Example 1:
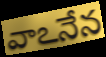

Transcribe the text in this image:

వాఽనేన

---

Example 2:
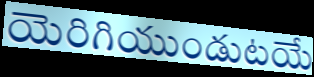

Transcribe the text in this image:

యెరిగియుండుటయే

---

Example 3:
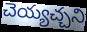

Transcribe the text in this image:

చెయ్యచ్చని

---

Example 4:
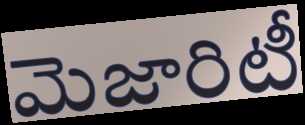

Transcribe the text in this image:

మెజారిటీ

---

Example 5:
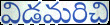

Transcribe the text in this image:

విడమరిచి